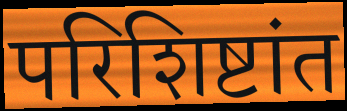
परिशिष्टांत